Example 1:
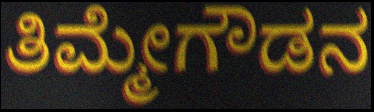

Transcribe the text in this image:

ತಿಮ್ಮೇಗೌಡನ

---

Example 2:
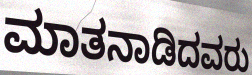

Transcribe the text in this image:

ಮಾತನಾಡಿದವರು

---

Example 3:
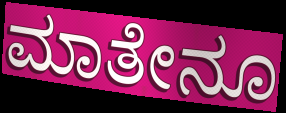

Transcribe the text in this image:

ಮಾತೇನೂ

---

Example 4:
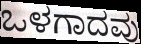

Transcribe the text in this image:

ಒಳಗಾದವು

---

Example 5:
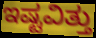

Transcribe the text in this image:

ಇಷ್ಟವಿತ್ತು